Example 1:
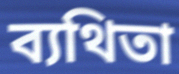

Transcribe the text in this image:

ব্যথিতা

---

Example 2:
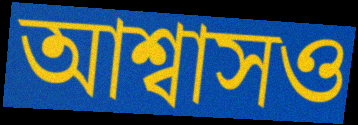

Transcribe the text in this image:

আশ্বাসও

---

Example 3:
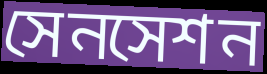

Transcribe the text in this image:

সেনসেশন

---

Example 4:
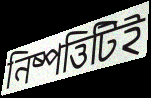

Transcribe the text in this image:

নিষ্পত্তিটিই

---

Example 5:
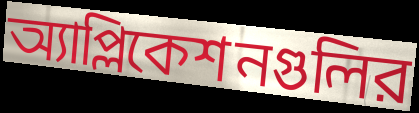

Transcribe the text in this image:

অ্যাপ্লিকেশনগুলির